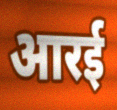
आरई